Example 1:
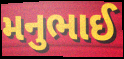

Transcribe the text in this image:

મનુભાઈ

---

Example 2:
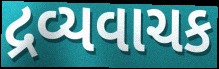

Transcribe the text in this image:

દ્રવ્યવાચક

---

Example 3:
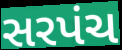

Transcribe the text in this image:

સરપંચ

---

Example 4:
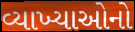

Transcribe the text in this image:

વ્યાખ્યાઓનો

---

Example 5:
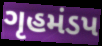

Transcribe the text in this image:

ગૃહમંડપ